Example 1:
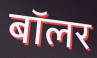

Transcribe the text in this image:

बॉलर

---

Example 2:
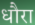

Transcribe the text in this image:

धौरा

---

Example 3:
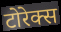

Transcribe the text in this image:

टोरेक्स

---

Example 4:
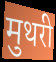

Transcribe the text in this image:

मुथरी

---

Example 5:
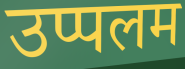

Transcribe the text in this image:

उप्पलम